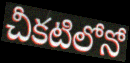
చీకటిలోనో